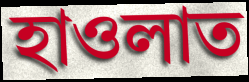
হাওলাত